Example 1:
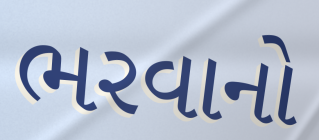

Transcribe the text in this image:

ભરવાનો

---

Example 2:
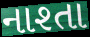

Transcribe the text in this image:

નાશ્તા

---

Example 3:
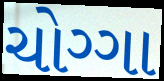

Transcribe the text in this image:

ચોગ્ગા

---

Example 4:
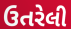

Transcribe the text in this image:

ઉતરેલી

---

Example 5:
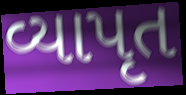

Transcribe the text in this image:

વ્યાપૃત